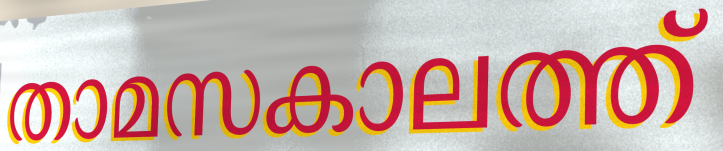
താമസകാലത്ത്